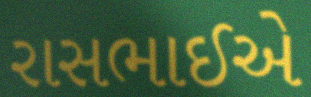
રાસભાઈએ